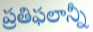
ప్రతిఫలాన్నీ